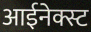
आईनेक्स्ट